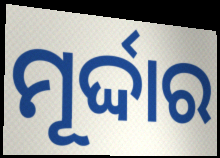
ମୂର୍ଦ୍ଦାର